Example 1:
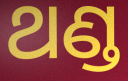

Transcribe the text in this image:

ଥଣ୍ଡ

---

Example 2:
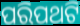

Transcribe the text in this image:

ପରିପଥଟି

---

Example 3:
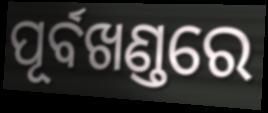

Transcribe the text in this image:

ପୂର୍ବଖଣ୍ଡରେ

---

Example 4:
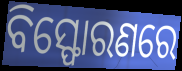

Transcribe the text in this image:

ବିସ୍ଫୋରଣରେ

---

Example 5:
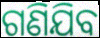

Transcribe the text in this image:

ଗଣିଯିବ